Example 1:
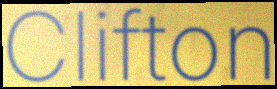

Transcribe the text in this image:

Clifton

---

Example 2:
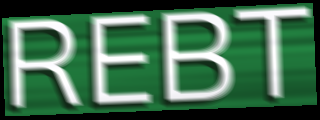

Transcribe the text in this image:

REBT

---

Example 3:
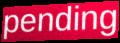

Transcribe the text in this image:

pending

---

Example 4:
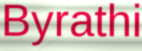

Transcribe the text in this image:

Byrathi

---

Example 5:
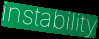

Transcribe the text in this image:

instability